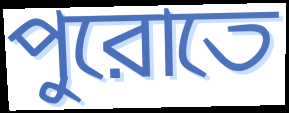
পুরোতে